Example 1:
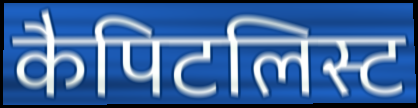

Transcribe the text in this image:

कैपिटलिस्ट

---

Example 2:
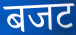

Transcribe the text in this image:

बजट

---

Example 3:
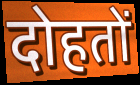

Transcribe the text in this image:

दोहतों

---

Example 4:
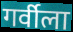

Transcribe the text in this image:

गर्वीला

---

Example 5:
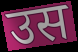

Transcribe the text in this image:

उस